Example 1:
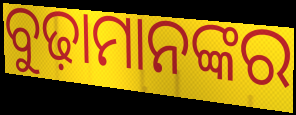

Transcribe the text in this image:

ବୁଢ଼ାମାନଙ୍କର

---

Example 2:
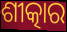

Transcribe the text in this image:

ଶୀତ୍କାର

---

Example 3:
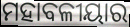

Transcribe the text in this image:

ମହାବଳୀୟାର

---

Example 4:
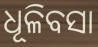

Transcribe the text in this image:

ଧୂଳିବସା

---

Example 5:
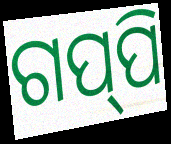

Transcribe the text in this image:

ଗପ୍‌ପି